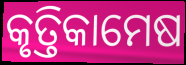
କୃତ୍ତିକାମେଷ